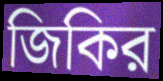
জিকির